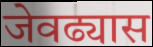
जेवढ्यास